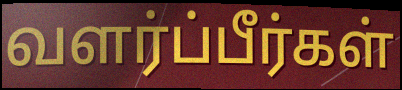
வளர்ப்பீர்கள்